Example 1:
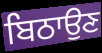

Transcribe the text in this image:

ਬਿਠਾਉਣ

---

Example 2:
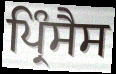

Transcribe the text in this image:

ਪ੍ਰਿੰਸੈਸ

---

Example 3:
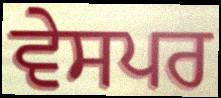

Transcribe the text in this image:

ਵੇਸਪਰ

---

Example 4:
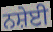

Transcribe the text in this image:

ਨਸ਼ੇਈ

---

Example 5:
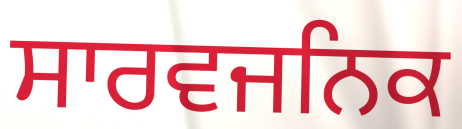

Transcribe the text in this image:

ਸਾਰਵਜਨਿਕ